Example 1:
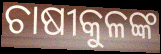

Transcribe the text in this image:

ଚାଷୀକୁଳଙ୍କ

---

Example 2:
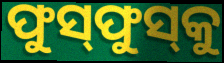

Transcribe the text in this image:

ଫୁସ୍‌ଫୁସ୍‌କୁ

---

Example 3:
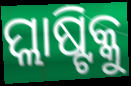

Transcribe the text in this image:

ପ୍ଲାଷ୍ଟିକ୍କୁ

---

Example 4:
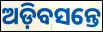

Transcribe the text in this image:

ଅଡ଼ିବସନ୍ତେ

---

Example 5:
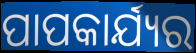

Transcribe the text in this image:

ପାପକାର୍ଯ୍ୟର